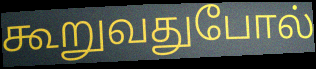
கூறுவதுபோல்